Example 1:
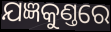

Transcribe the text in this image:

ଯଜ୍ଞକୁଣ୍ତରେ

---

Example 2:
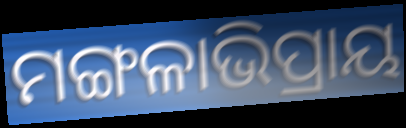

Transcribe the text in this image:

ମଙ୍ଗଳାଭିପ୍ରାୟ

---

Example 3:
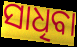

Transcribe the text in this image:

ସାଧିବା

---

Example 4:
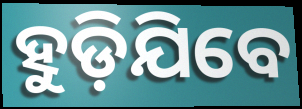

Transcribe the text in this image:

ହୁଡ଼ିଯିବେ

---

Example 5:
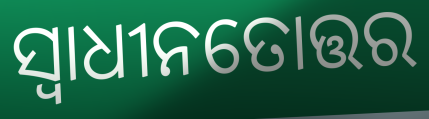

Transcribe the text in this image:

ସ୍ୱାଧୀନତୋତ୍ତର